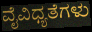
ವೈವಿಧ್ಯತೆಗಳು